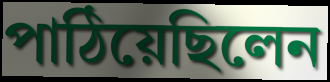
পাঠিয়েছিলেন